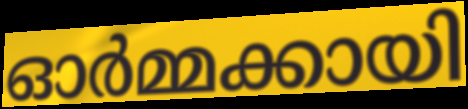
ഓർമ്മക്കായി